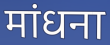
मांधना